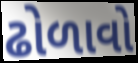
ઢોળાવો